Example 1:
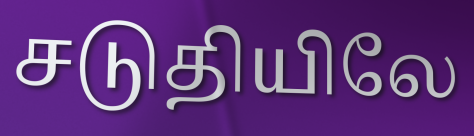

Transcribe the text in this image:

சடுதியிலே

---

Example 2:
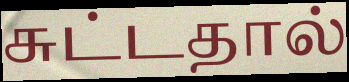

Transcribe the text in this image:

சுட்டதால்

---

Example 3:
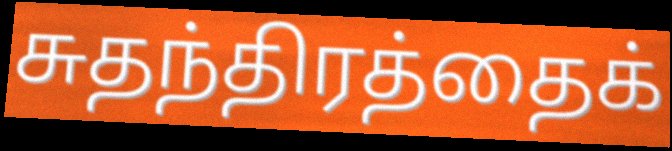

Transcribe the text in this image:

சுதந்திரத்தைக்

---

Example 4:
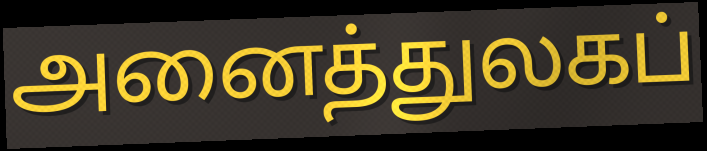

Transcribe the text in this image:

அனைத்துலகப்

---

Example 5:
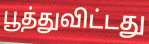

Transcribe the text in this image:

பூத்துவிட்டது